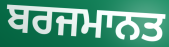
ਬਰਜਮਾਨਤ